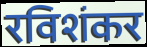
रविशंकर